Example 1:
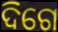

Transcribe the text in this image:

ଦିଗେ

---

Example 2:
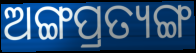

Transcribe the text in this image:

ଅଙ୍ଗପ୍ରତ୍ୟଙ୍ଗ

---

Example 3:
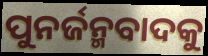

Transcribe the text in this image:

ପୁନର୍ଜନ୍ମବାଦକୁ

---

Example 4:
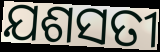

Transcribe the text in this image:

ଯଶସତୀ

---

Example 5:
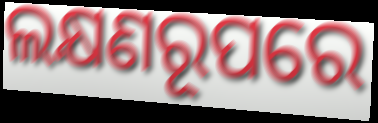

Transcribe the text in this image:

ଲକ୍ଷଣରୂପରେ